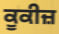
ਕੂਕੀਜ਼